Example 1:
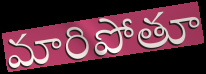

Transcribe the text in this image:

మారిపోతూ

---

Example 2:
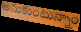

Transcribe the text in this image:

అనుకుంటున్నాం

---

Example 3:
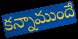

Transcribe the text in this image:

కన్నాముందే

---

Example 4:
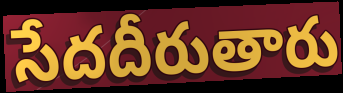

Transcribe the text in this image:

సేదదీరుతారు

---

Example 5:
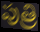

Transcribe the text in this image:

పుత్రి